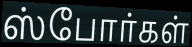
ஸ்போர்கள்